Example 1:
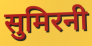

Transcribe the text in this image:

सुमिरनी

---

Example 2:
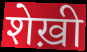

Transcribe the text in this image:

शेख़ी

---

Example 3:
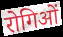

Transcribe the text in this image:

रोगिओं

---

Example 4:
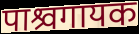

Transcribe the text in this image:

पाश्र्वगायक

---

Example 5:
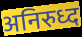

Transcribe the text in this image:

अनिरुध्द